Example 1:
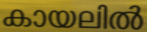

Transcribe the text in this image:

കായലിൽ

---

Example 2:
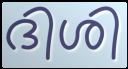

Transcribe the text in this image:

ദിശി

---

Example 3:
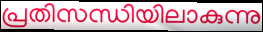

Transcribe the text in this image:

പ്രതിസന്ധിയിലാകുന്നു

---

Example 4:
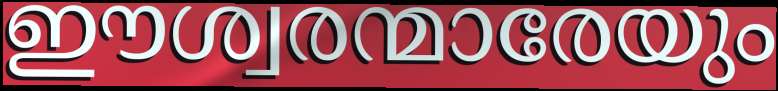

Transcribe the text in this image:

ഈശ്വരന്മാരേയും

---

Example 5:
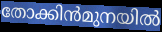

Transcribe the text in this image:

തോക്കിൻമുനയിൽ